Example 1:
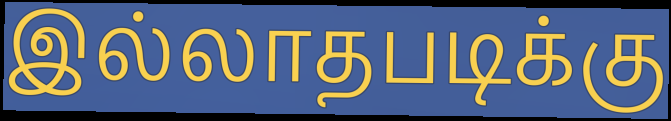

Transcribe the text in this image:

இல்லாதபடிக்கு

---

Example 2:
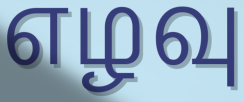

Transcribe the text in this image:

எழவு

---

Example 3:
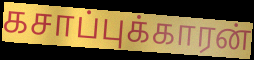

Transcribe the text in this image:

கசாப்புக்காரன்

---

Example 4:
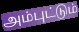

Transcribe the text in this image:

அம்புட்டும்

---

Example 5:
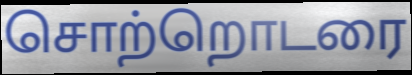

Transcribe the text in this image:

சொற்றொடரை